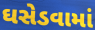
ઘસેડવામાં